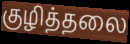
குழித்தலை